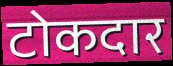
टोकदार